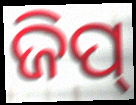
ଜିପ୍